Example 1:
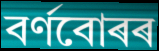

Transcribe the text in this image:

বৰ্ণবোৰৰ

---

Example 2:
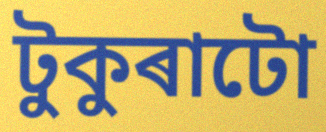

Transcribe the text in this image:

টুকুৰাটো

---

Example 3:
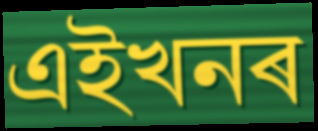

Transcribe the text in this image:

এইখনৰ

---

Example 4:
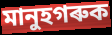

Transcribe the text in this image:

মানুহগৰুক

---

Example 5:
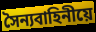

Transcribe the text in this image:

সৈন্যবাহিনীয়ে